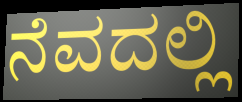
ನೆವದಲ್ಲಿ